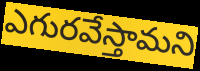
ఎగురవేస్తామని